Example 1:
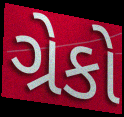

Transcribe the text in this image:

ગ્રેકો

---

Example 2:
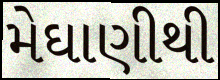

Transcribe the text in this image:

મેઘાણીથી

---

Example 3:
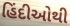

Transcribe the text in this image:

હિંદીઓથી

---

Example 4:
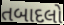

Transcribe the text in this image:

તબાદલો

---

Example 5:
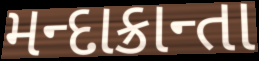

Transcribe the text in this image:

મન્દાક્રાન્તા